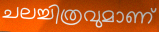
ചലച്ചിത്രവുമാണ്